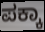
ಪಕ್ಕಾ